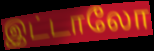
இட்டாலோ